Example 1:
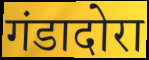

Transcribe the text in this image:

गंडादोरा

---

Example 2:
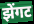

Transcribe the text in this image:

झेंगट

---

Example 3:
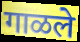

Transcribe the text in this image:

गाळले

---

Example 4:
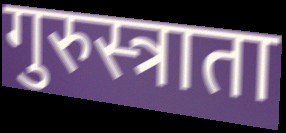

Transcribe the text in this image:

गुरुस्त्राता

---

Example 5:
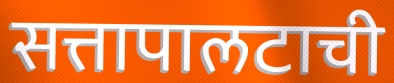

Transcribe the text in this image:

सत्तापालटाची